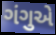
ગંગુએ